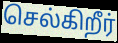
செல்கிறீர்